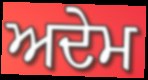
ਅਦੇਮ